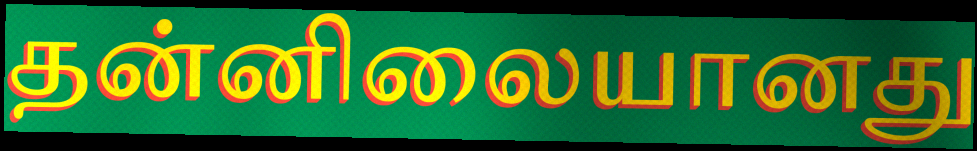
தன்னிலையானது